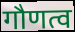
गौणत्व